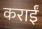
कराईं